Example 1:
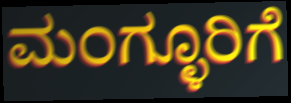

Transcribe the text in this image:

ಮಂಗ್ಳೂರಿಗೆ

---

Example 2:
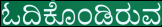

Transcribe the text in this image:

ಓದಿಕೊಂಡಿರುವ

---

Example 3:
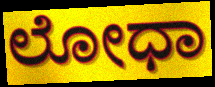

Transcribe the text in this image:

ಲೋಧಾ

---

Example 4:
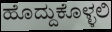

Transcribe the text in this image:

ಹೊದ್ದುಕೊಳ್ಳಲಿ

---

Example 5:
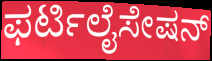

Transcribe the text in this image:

ಫರ್ಟಿಲೈಸೇಷನ್